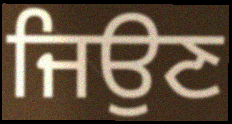
ਜਿਉਣ